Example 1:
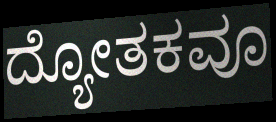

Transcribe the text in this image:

ದ್ಯೋತಕವೂ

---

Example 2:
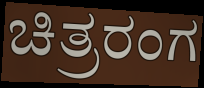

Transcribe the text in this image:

ಚಿತ್ರರಂಗ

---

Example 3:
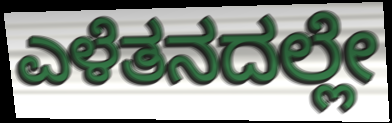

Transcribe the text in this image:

ಎಳೆತನದಲ್ಲೇ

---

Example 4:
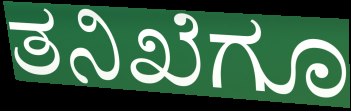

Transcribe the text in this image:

ತನಿಖೆಗೂ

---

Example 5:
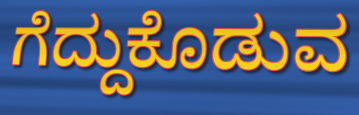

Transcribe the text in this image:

ಗೆದ್ದುಕೊಡುವ